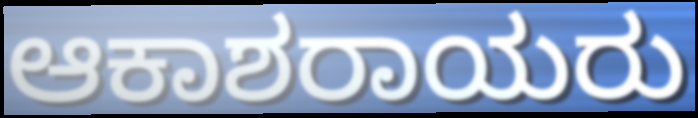
ಆಕಾಶರಾಯರು